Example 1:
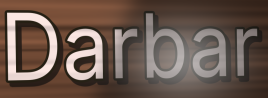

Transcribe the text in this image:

Darbar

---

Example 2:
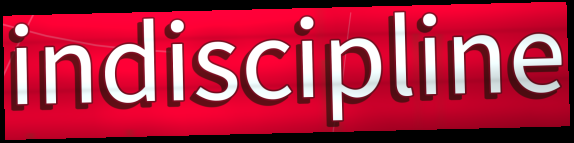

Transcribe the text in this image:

indiscipline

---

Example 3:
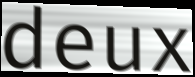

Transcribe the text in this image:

deux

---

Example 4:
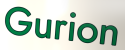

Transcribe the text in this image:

Gurion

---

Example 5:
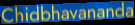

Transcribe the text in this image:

Chidbhavananda